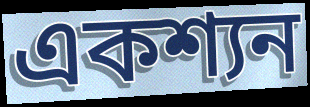
একশ্যন